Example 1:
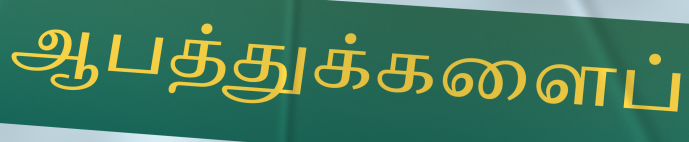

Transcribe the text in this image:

ஆபத்துக்களைப்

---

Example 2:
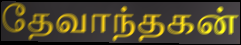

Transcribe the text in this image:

தேவாந்தகன்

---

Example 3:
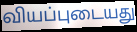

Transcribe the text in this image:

வியப்புடையது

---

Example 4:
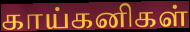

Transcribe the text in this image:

காய்கனிகள்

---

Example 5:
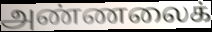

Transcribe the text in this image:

அண்ணலைக்